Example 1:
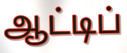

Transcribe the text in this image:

ஆட்டிப்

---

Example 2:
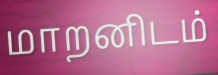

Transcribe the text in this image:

மாறனிடம்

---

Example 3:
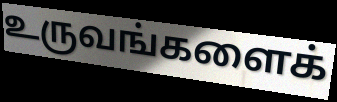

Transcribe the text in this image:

உருவங்களைக்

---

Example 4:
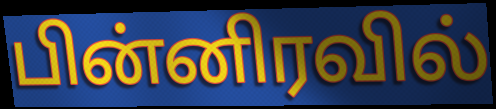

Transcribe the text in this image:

பின்னிரவில்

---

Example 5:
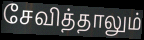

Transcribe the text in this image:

சேவித்தாலும்